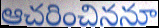
ఆచరించిననూ